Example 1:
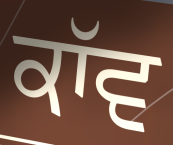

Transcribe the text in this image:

ਕਾੱਵ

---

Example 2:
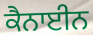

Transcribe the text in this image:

ਕੈਨਾਈਨ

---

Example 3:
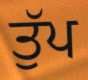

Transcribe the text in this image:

ਤੁੱਪ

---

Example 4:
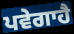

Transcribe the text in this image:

ਪਵੇਗਾਹੈ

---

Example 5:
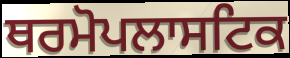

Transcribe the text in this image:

ਥਰਮੋਪਲਾਸਟਿਕ